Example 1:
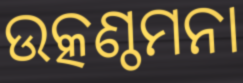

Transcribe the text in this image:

ଉତ୍କଣ୍ଠମନା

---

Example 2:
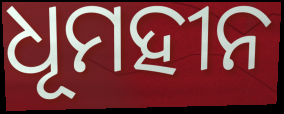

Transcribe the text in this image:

ଧୂମହୀନ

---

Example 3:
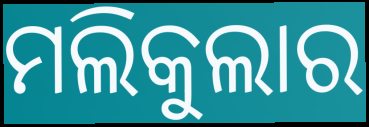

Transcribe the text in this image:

ମଲିକୁଲାର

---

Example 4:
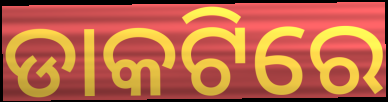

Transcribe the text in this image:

ଡାକଟିରେ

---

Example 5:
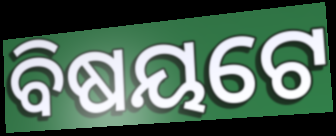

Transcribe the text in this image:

ବିଷୟଟେ